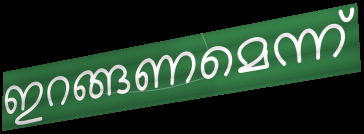
ഇറങ്ങണമെന്ന്